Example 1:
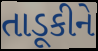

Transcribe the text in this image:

તાડૂકીને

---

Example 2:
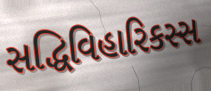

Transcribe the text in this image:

સદ્ધિવિહારિકસ્સ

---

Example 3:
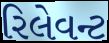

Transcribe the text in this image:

રિલેવન્ટ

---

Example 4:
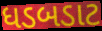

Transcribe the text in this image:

ધડબડાટ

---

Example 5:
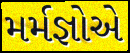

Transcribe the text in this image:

મર્મજ્ઞોએ